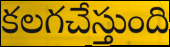
కలగచేస్తుంది